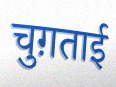
चुग़ताई